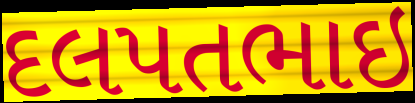
દલપતભાઇ